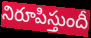
నిరూపిస్తుందీ